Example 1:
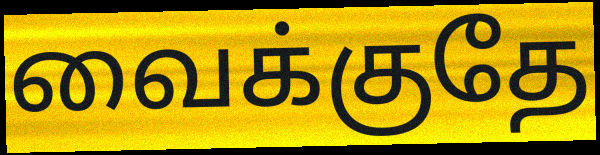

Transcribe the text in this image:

வைக்குதே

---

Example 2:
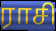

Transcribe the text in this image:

ராசி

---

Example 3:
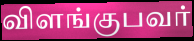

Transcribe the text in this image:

விளங்குபவர்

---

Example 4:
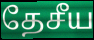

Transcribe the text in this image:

தேசீய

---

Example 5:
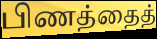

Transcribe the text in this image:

பிணத்தைத்